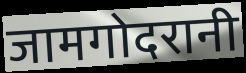
जामगोदरानी